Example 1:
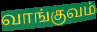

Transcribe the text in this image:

வாங்குவம்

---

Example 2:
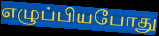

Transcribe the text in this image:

எழுப்பியபோது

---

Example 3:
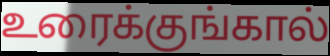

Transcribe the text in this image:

உரைக்குங்கால்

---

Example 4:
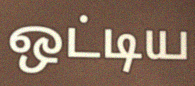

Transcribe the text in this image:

ஒட்டிய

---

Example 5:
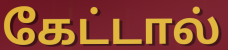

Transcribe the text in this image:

கேட்டால்